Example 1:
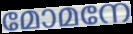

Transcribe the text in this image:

മോമനേ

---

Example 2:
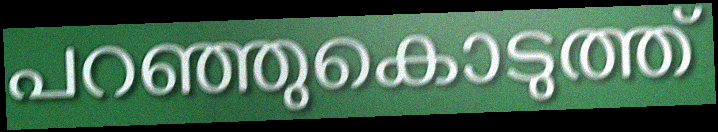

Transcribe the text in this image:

പറഞ്ഞുകൊടുത്ത്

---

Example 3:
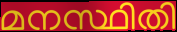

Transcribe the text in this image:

മനസ്ഥിതി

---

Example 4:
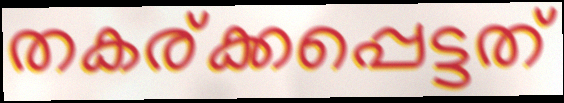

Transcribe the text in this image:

തകര്ക്കപ്പെട്ടത്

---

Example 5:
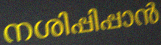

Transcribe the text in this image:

നശിപ്പിപ്പാൻ